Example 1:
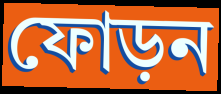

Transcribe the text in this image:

ফোড়ন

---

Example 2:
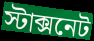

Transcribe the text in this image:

স্টাক্সনেট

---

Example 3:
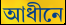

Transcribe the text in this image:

আধীনে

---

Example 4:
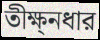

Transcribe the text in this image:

তীক্ষ্নধার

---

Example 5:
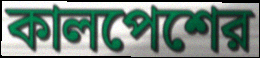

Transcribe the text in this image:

কালপেশের